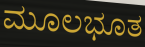
ಮೂಲಭೂತ